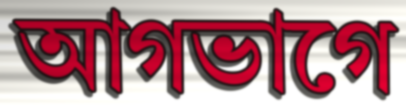
আগভাগে